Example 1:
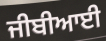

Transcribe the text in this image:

ਜੀਬੀਆਈ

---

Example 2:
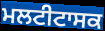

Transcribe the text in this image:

ਮਲਟੀਟਾਸਕ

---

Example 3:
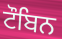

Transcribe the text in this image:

ਟੌਬਿਨ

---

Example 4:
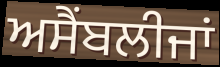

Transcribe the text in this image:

ਅਸੈਂਬਲੀਜਾਂ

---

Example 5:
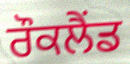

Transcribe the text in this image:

ਰੌਕਲੈਂਡ